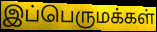
இப்பெருமக்கள்